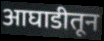
आघाडीतून